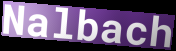
Nalbach